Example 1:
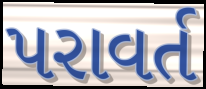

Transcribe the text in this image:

પરાવર્ત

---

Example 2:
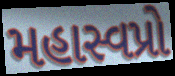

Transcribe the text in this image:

મહાસ્વપ્રો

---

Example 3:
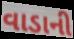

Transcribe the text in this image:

વાડાની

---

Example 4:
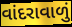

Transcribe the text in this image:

વાંદરાવાળું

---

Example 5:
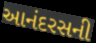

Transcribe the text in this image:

આનંદરસની